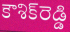
కౌశిక్‌రెడ్డి